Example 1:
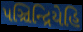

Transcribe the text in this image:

પઞ્ચિન્દ્રિયેહિ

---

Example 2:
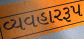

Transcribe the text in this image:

વ્યવહારરૂપ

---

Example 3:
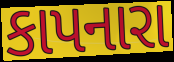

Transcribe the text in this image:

કાપનારા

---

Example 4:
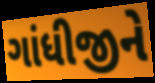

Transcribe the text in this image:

ગાંધીજીને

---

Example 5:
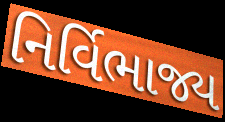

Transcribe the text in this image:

નિર્વિભાજ્ય